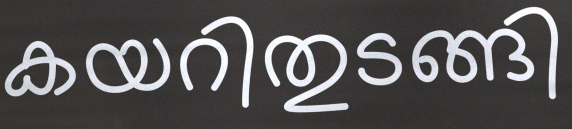
കയറിതുടങ്ങി